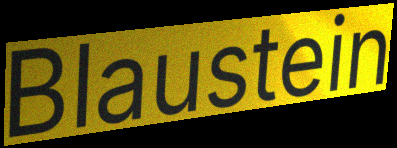
Blaustein